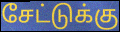
சேட்டுக்கு